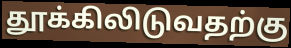
தூக்கிலிடுவதற்கு